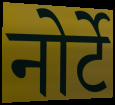
नोर्टे